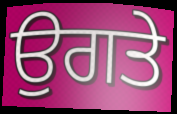
ਉਗਤੇ